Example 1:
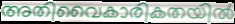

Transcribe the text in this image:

അതിവൈകാരികതയിൽ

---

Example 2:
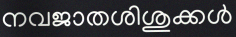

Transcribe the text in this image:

നവജാതശിശുക്കൾ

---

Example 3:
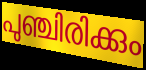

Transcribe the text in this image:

പുഞ്ചിരിക്കും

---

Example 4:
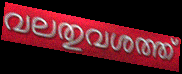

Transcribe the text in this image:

വലതുവശത്ത്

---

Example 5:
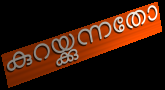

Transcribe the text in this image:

കുറയ്ക്കുന്നതോ